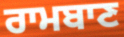
ਰਾਮਬਾਣ